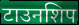
टाउनशिप